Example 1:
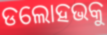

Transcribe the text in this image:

ଡଲୋହଭକୁ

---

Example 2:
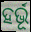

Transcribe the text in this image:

ହର୍ଭୂ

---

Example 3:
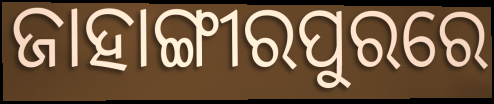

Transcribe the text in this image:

ଜାହାଙ୍ଗୀରପୁରରେ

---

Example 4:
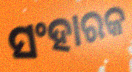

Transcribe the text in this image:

ସଂହାରକ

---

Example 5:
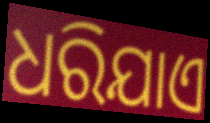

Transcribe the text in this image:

ଧରିଯାଏ